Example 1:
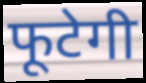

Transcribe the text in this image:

फूटेगी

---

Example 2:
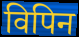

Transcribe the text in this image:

विपिन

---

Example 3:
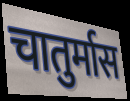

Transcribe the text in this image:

चातुर्मास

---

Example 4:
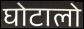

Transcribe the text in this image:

घोटालो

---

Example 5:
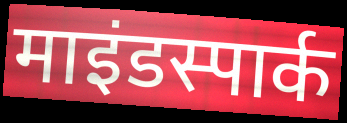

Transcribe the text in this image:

माइंडस्पार्क